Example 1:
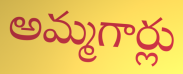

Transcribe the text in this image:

అమ్మగార్లు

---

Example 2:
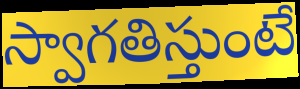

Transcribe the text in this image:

స్వాగతిస్తుంటే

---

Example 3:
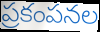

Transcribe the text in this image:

ప్రకంపనల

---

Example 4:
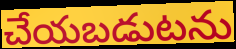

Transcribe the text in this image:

చేయబడుటను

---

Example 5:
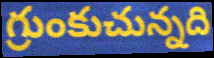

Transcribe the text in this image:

గ్రుంకుచున్నది